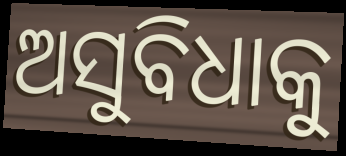
ଅସୁବିଧାକୁ